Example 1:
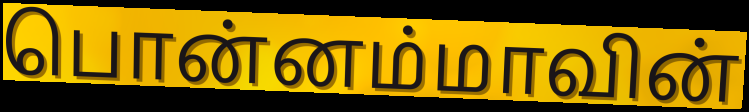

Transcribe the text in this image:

பொன்னம்மாவின்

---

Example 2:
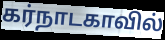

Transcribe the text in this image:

கர்நாடகாவில்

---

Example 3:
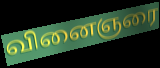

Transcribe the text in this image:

வினைஞரை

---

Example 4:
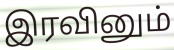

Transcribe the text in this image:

இரவினும்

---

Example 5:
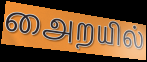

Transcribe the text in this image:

அைறயில்